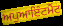
ਅਪੁਆਇੰਟਮੈਂਟ